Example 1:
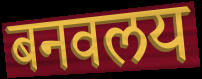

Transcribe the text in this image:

बनवलय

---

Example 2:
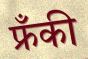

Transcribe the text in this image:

फ्रँकी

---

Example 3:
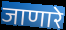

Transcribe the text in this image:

जाणारे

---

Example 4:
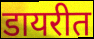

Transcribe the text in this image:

डायरीत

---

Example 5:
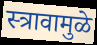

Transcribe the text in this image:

स्त्रावामुळे